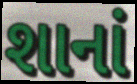
શાનાં